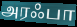
அரஃபா